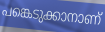
പങ്കെടുക്കാനാണ്